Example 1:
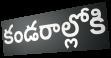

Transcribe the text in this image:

కండరాల్లోకి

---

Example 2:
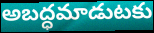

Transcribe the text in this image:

అబద్ధమాడుటకు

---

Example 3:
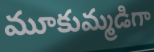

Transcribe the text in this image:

మూకుమ్మడిగా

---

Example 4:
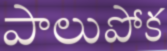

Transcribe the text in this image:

పాలుపోక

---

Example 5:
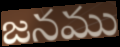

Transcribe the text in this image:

జనము